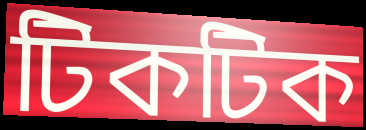
টিকটিক